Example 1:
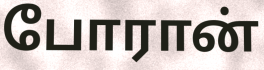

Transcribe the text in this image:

போரான்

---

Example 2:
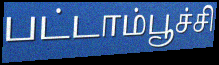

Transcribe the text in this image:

பட்டாம்பூச்சி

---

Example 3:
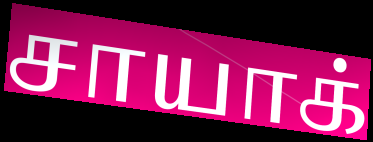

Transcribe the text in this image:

சாயாக்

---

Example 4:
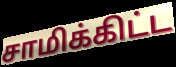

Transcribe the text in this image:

சாமிக்கிட்ட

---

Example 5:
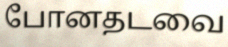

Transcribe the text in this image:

போனதடவை